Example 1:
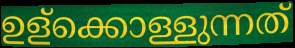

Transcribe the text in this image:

ഉള്ക്കൊള്ളുന്നത്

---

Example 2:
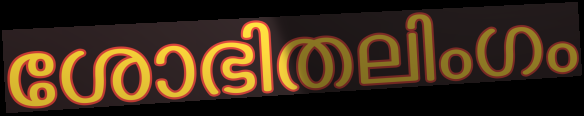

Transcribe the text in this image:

ശോഭിതലിംഗം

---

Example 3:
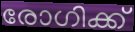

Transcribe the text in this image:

രോഗിക്ക്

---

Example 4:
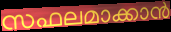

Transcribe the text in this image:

സഫലമാക്കാൻ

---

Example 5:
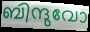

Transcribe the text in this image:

ബിന്ദുവോ